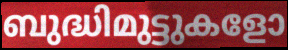
ബുദ്ധിമുട്ടുകളോ